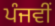
ਪੰਜਵੀਂ